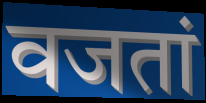
वजतां